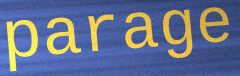
parage